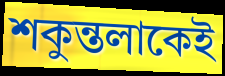
শকুন্তলাকেই